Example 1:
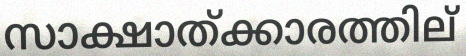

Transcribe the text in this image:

സാക്ഷാത്ക്കാരത്തില്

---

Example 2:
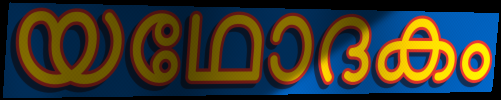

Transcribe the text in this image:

യഥോദകം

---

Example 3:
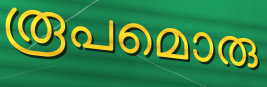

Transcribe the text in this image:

രൂപമൊരു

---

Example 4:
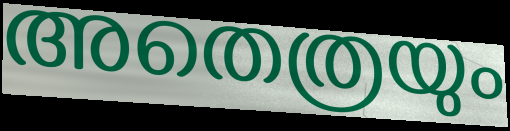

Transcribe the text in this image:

അതെത്രയും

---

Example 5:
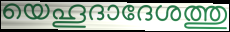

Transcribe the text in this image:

യെഹൂദാദേശത്തു